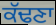
ਕੱਢਣਾ